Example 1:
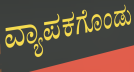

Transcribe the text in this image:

ವ್ಯಾಪಕಗೊಂಡು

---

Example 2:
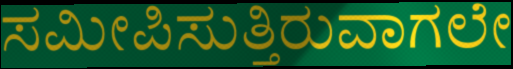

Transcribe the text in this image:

ಸಮೀಪಿಸುತ್ತಿರುವಾಗಲೇ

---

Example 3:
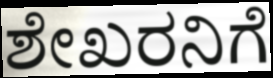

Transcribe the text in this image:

ಶೇಖರನಿಗೆ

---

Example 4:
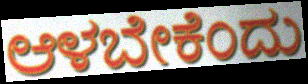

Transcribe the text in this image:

ಆಳಬೇಕೆಂದು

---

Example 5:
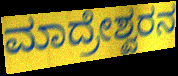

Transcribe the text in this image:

ಮಾದ್ರೇಶ್ವರನ